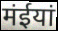
मंईयां